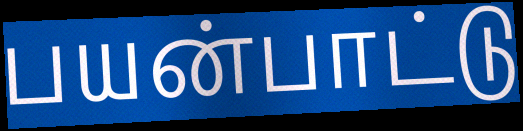
பயன்பாட்டு